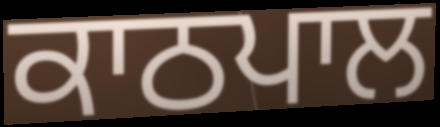
ਕਾਠਪਾਲ